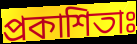
প্রকাশিতাঃ